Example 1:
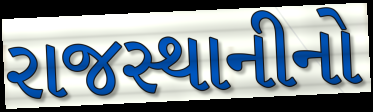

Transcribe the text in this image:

રાજસ્થાનીનો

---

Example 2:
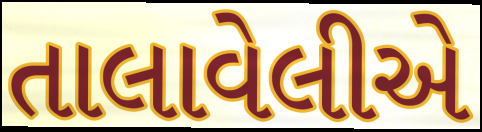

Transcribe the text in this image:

તાલાવેલીએ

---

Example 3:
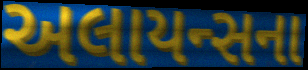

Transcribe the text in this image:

અલાયન્સના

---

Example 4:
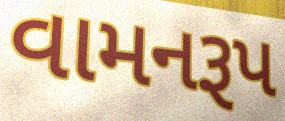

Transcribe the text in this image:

વામનરૂપ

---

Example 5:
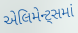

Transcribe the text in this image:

એલિમેન્ટ્સમાં